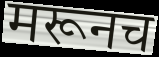
मरूनच